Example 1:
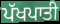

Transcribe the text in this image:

ਪੱਖਪਾਤੀ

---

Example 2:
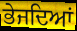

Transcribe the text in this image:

ਭੇਜਦਿਆਂ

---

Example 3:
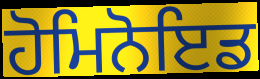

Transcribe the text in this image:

ਹੋਮਿਨੋਇਡ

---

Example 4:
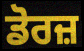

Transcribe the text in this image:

ਡੋਰਜ਼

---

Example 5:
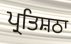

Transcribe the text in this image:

ਪ੍ਰਤਿਸ਼ਠਾ